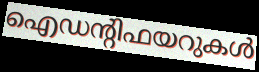
ഐഡന്റിഫയറുകൾ